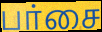
பர்சை